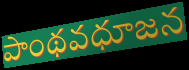
పాంథవధూజన